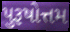
પુરૂષોત્તમ